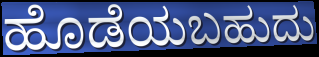
ಹೊಡೆಯಬಹುದು